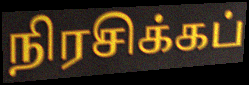
நிரசிக்கப்